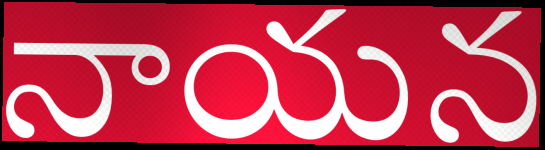
నాయన